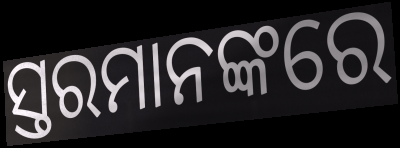
ସ୍ତରମାନଙ୍କରେ